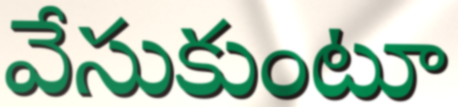
వేసుకుంటూ